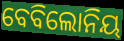
ବେବିଲୋନିୟ